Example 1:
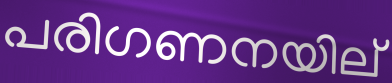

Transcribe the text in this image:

പരിഗണനയില്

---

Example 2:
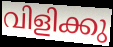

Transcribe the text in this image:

വിളിക്കു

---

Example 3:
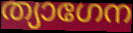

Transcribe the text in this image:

ത്യാഗേന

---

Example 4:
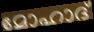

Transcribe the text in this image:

മോഹാദ്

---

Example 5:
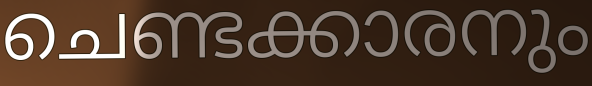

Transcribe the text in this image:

ചെണ്ടക്കാരനും